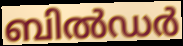
ബിൽഡർ